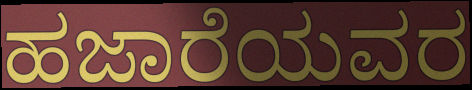
ಹಜಾರೆಯವರ